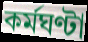
কৰ্মঘণ্টা